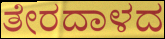
ತೇರದಾಳದ